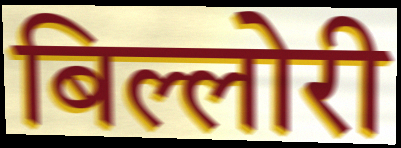
बिल्लोरी